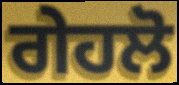
ਗੇਹਲੋ